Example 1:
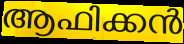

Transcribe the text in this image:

ആഫിക്കൻ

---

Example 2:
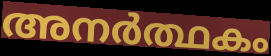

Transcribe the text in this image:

അനർത്ഥകം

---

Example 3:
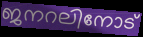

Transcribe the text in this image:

ജനറലിനോട്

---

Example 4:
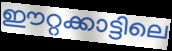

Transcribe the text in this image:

ഈറ്റക്കാട്ടിലെ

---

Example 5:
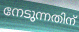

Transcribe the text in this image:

നേടുന്നതിന്